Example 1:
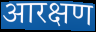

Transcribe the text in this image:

आरक्षण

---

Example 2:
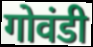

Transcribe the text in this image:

गोवंडी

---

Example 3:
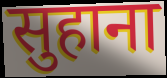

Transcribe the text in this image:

सुहाना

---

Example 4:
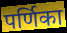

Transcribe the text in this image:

पर्णिका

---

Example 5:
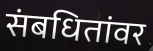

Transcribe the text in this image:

संबधितांवर